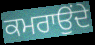
ਕਮਰਾਉਂਦੇ